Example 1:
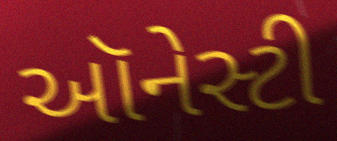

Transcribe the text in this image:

ઑનેસ્ટી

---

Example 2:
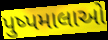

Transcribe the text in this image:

પુષ્પમાલાઓ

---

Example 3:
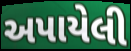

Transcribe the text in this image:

અપાયેલી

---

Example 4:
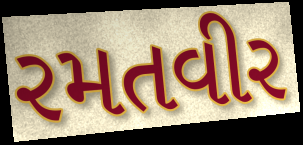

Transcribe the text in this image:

રમતવીર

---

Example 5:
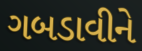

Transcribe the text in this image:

ગબડાવીને